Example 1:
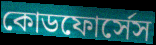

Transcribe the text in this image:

কোডফোর্সেস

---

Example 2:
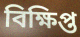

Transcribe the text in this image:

বিক্ষিপ্ত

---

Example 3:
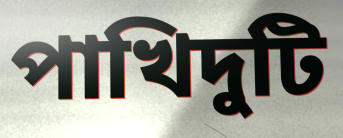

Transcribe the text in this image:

পাখিদুটি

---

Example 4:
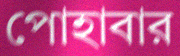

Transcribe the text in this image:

পোহাবার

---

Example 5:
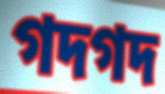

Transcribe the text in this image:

গদগদ